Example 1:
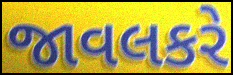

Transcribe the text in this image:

જાવલકરે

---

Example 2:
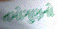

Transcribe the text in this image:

તમોગુણનો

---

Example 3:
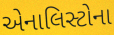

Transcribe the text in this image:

એનાલિસ્ટોના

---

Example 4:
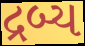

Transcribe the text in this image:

દ્રબ્ય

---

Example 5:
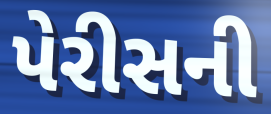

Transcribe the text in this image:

પેરીસની